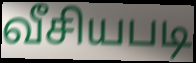
வீசியபடி